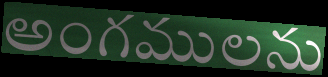
అంగములను